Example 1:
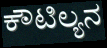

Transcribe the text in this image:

ಕೌಟಿಲ್ಯನ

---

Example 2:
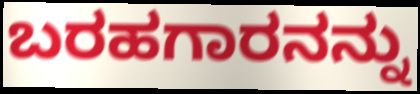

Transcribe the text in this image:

ಬರಹಗಾರನನ್ನು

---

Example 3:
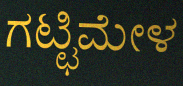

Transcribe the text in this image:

ಗಟ್ಟಿಮೇಳ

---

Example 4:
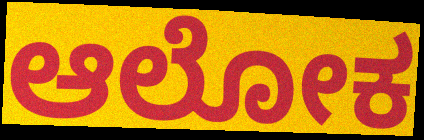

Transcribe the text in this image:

ಆಲೋಕ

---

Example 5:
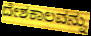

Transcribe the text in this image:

ದೇಶಕಾಲವನ್ನು